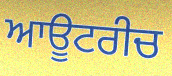
ਆਊਟਰੀਚ